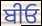
ਬੀਓ